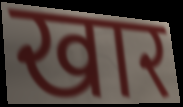
खार